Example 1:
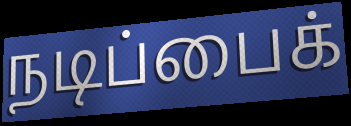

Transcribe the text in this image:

நடிப்பைக்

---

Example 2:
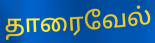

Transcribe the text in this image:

தாரைவேல்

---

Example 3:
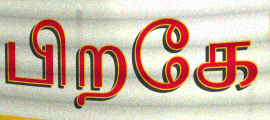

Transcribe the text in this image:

பிறகே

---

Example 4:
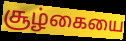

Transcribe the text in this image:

சூழ்கையை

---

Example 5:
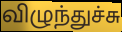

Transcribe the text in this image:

விழுந்துச்சு